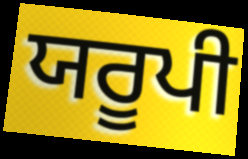
ਯਰੂਪੀ